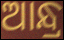
ଆନ୍ଧ୍ର